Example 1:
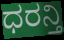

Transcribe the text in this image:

ಧರನ್ತಿ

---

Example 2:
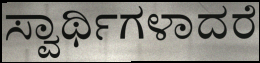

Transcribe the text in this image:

ಸ್ವಾರ್ಥಿಗಳಾದರೆ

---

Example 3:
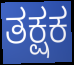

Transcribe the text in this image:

ತಕ್ಷಕ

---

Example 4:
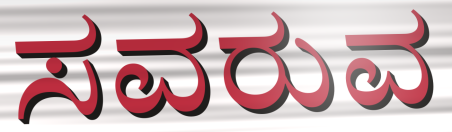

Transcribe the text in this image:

ಸವರುವ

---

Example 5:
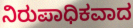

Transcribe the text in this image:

ನಿರುಪಾಧಿಕವಾದ